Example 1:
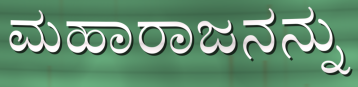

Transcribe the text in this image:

ಮಹಾರಾಜನನ್ನು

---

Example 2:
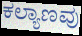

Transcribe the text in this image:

ಕಲ್ಯಾಣವು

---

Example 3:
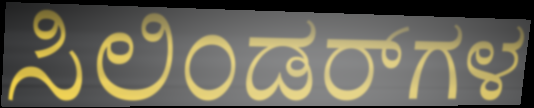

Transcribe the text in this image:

ಸಿಲಿಂಡರ್‌ಗಳ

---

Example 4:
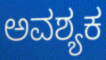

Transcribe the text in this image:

ಅವಶ್ಯಕ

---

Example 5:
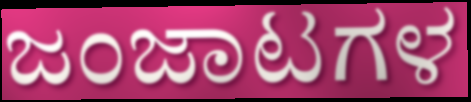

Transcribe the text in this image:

ಜಂಜಾಟಗಳ